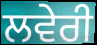
ਲਵੇਰੀ